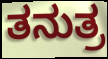
ತನುತ್ರ